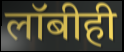
लॉबीही